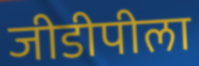
जीडीपीला